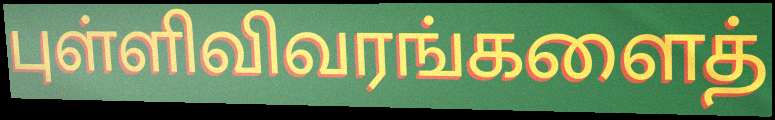
புள்ளிவிவரங்களைத்